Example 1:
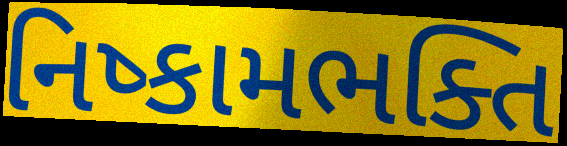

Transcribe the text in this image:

નિષ્કામભક્તિ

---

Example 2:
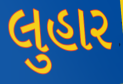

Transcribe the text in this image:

લુહાર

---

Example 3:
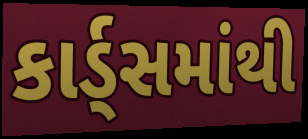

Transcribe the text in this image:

કાર્ડ્સમાંથી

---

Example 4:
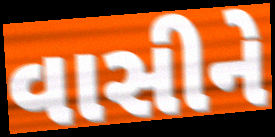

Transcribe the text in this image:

વાસીને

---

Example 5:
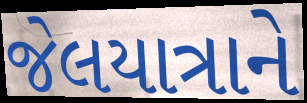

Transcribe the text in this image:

જેલયાત્રાને